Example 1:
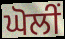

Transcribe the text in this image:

ਘੋਲੀਂ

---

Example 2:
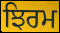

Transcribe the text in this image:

ਝਿਰਮ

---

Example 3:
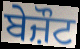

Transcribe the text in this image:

ਬੇਜ਼ੌਟ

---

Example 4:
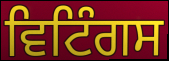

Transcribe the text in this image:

ਵਿਟਿੰਗਸ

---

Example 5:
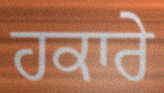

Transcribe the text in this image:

ਹਕਾਰੇ